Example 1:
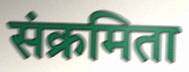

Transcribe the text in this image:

संक्रमिता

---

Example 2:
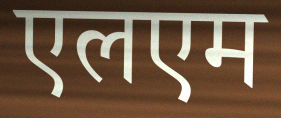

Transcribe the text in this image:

एलएम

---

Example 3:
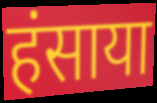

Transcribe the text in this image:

हंसाया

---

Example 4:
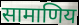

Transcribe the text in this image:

सामाणिय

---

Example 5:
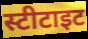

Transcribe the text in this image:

स्टीटाइट